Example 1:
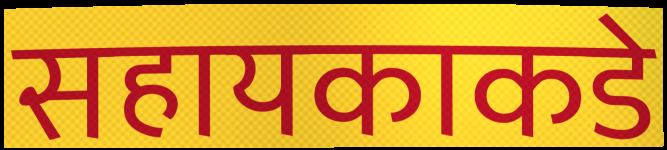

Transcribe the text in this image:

सहायकाकडे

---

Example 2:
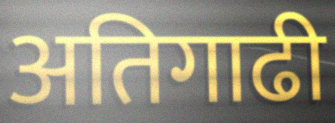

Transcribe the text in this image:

अतिगाढी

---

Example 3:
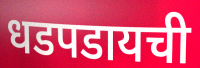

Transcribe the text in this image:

धडपडायची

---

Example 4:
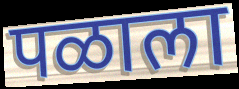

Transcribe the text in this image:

पळाला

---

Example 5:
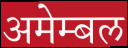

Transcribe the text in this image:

अमेम्बल